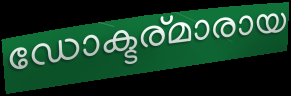
ഡോക്ടര്മാരായ